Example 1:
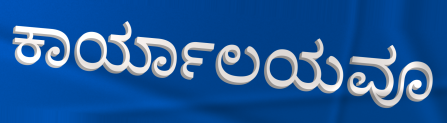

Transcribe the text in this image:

ಕಾರ್ಯಾಲಯವೂ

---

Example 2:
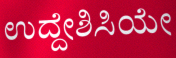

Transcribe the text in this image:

ಉದ್ದೇಶಿಸಿಯೇ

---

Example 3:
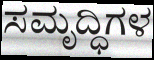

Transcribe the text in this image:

ಸಮೃದ್ಧಿಗಳ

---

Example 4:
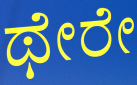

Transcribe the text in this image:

ಥೇರೇ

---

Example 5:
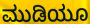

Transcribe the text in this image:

ಮುಡಿಯೂ